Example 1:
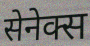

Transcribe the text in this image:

सेनेक्स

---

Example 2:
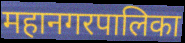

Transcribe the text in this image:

महानगरपालिका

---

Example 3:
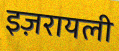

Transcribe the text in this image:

इज़रायली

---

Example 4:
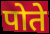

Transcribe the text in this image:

पोते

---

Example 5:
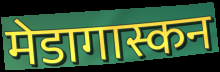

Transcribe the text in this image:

मेडागास्कन